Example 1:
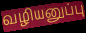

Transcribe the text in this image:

வழியனுப்பு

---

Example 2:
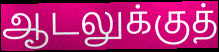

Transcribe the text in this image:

ஆடலுக்குத்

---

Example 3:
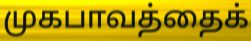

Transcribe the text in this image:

முகபாவத்தைக்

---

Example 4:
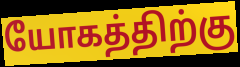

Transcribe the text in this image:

யோகத்திற்கு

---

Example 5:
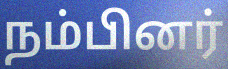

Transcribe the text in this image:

நம்பினர்